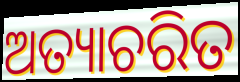
ଅତ୍ୟାଚରିତ